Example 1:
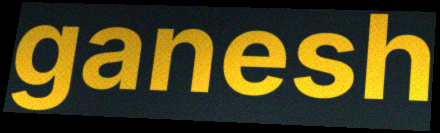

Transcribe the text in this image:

ganesh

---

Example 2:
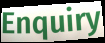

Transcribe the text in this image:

Enquiry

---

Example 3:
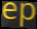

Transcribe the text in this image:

ep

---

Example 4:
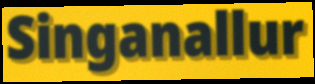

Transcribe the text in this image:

Singanallur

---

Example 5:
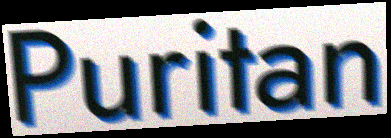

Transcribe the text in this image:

Puritan